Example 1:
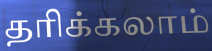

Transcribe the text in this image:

தரிக்கலாம்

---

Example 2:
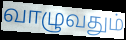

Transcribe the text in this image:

வாழுவதும்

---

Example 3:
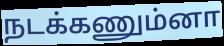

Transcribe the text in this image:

நடக்கணும்னா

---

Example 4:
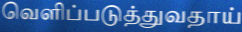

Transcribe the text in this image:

வெளிப்படுத்துவதாய்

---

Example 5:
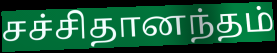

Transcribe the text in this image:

சச்சிதானந்தம்